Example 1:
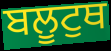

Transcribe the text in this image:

ਬਲੂਟੁਥ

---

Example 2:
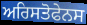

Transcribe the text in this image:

ਅਰਿਸਤੋਫੇਨਸ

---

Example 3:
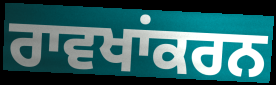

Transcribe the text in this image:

ਰਾਵਖਾਂਕਰਨ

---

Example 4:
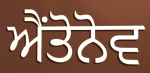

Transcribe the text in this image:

ਐਂਤੋਨੋਵ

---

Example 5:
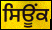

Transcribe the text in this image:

ਸਿਊਂਕ